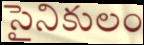
సైనికులం